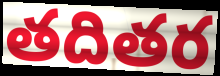
తదితర